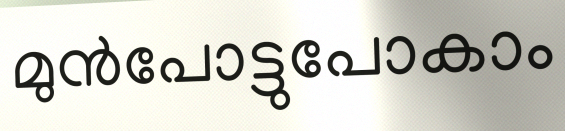
മുൻപോട്ടുപോകാം